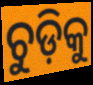
ଚୁଡ଼ିକୁ